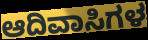
ಆದಿವಾಸಿಗಳ